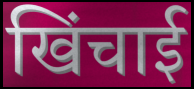
खिंचाई